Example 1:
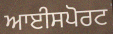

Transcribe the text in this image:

ਆਈਸਪੋਰਟ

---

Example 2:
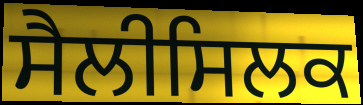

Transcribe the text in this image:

ਸੈਲੀਸਿਲਕ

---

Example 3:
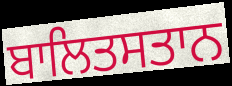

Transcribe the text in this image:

ਬਾਲਿਤਸਤਾਨ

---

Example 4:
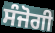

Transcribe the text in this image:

ਸੰਜੋਗੀ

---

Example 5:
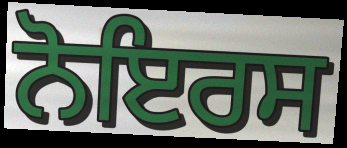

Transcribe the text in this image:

ਨੋਇਰਸ